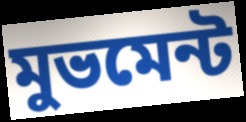
মুভমেন্ট